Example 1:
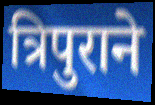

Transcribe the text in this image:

त्रिपुराने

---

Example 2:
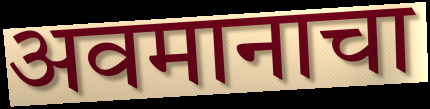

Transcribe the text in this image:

अवमानाचा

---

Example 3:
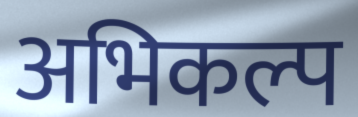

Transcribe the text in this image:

अभिकल्प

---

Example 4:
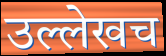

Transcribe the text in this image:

उल्लेखच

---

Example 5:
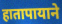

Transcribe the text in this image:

हातापायाने